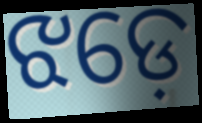
ଝଡ଼େ